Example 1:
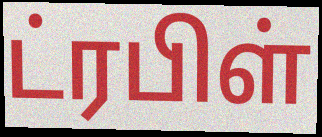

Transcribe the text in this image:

ட்ரபிள்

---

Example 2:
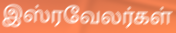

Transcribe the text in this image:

இஸ்ரவேலர்கள்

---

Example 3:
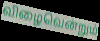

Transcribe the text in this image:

விழைவென்றும்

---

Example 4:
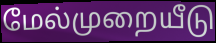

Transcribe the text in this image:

மேல்முறையீடு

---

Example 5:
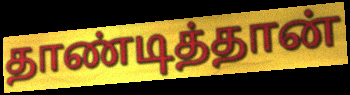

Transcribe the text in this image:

தாண்டித்தான்